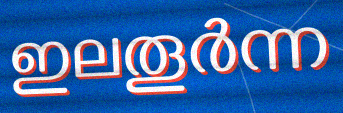
ഇലതൂർന്ന